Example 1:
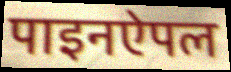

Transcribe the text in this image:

पाइनऐपल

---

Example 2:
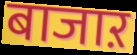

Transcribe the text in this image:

बाजाऱ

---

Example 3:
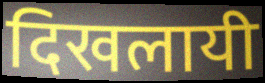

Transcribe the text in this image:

दिखलायी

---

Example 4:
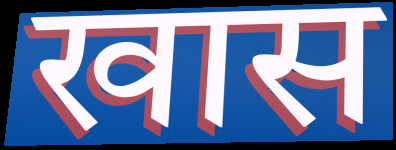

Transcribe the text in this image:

खास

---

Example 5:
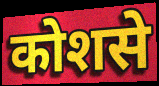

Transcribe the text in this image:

कोशसे